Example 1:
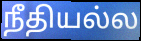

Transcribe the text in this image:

நீதியல்ல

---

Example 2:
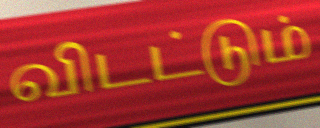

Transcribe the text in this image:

விடட்டும்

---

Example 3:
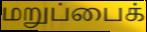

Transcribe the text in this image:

மறுப்பைக்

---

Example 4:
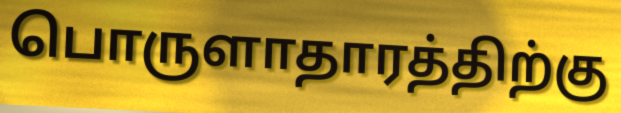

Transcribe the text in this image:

பொருளாதாரத்திற்கு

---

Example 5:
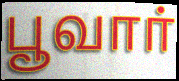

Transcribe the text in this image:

பூவார்